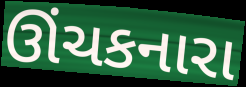
ઊંચકનારા